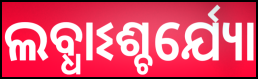
ଲବ୍ଧାଽଶ୍ଚର୍ଯ୍ୟୋ